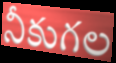
నీకుగల